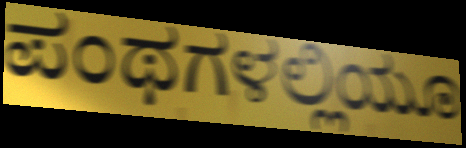
ಪಂಥಗಳಲ್ಲಿಯೂ